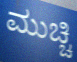
ಮುಚ್ಚಿ